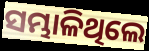
ସମ୍ଭାଳିଥିଲେ